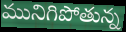
మునిగిపోతున్న